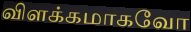
விளக்கமாகவோ